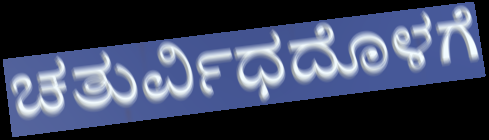
ಚತುರ್ವಿಧದೊಳಗೆ